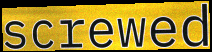
screwed